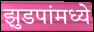
झुडपांमध्ये